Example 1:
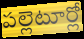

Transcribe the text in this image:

పల్లెటూర్లో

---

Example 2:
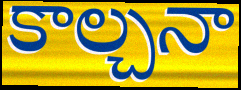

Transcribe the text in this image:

కాల్చనా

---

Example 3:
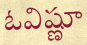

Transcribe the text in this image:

ఓవిష్ణూ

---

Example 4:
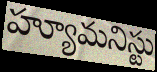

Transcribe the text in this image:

హ్యూమనిస్టు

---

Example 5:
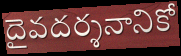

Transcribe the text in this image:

దైవదర్శనానికో